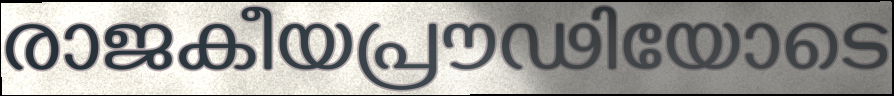
രാജകീയപ്രൗഢിയോടെ